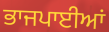
ਭਾਜਪਾਈਆਂ